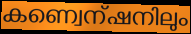
കണ്വെന്ഷനിലും